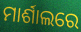
ମାର୍ଶାଲରେ